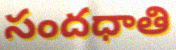
సందధాతి